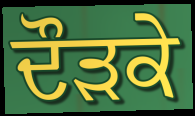
ਦੌੜਕੇ